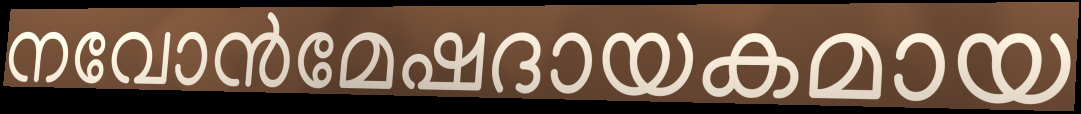
നവോൻമേഷദായകമായ